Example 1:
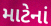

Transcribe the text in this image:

માટેનાં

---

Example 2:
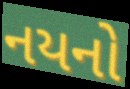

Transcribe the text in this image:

નયનો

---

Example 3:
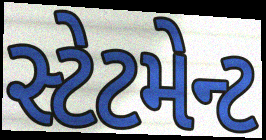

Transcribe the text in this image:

સ્ટેટમેન્ટ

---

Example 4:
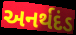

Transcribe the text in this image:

અનર્થદંડ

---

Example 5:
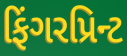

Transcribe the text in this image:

ફિંગરપ્રિન્ટ